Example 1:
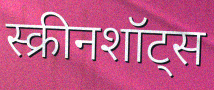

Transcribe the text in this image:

स्क्रीनशॉट्स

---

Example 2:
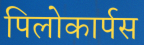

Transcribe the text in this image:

पिलोकार्पस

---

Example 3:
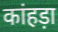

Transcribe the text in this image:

कांहड़ा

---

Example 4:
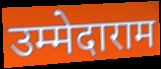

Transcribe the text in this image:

उम्मेदाराम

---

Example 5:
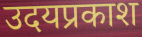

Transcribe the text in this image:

उदयप्रकाश